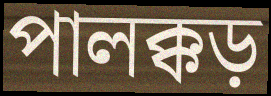
পালক্কড়